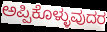
ಅಪ್ಪಿಕೊಳ್ಳುವುದರ